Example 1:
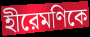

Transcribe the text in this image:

হীরেমণিকে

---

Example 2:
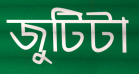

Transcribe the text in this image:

জুটিটা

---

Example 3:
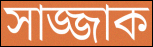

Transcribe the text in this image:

সাজ্জাক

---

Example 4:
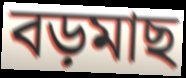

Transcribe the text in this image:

বড়মাছ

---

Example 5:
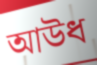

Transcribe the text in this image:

আউধ